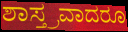
ಶಾಸ್ತ್ರವಾದರೂ